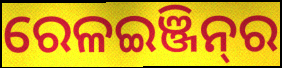
ରେଳଇଞ୍ଜିନ୍‌ର